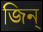
জিন্